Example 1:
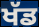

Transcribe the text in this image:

ਖੱਡ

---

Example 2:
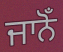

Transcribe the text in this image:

ਜਾਨੋਁ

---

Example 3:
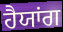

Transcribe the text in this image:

ਹੈਯਾਂਗ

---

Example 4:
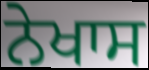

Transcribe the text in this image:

ਨੇਖਾਸ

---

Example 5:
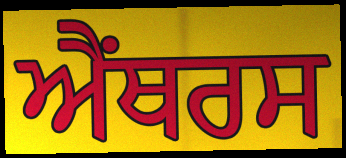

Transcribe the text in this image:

ਐਂਥਰਸ